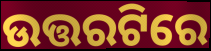
ଉତ୍ତରଟିରେ